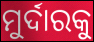
ମୁର୍ଦାରକୁ